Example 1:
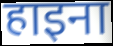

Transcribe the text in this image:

हाइना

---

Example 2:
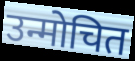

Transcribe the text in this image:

उन्मोचित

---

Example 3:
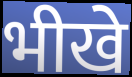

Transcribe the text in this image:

भीखे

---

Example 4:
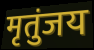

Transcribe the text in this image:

मृतुंजय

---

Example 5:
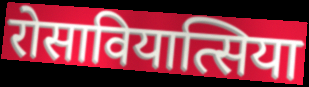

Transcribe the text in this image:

रोसावियात्सिया